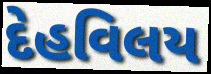
દેહવિલય